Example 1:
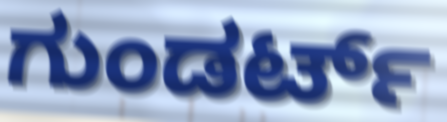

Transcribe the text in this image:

ಗುಂಡರ್ಟ್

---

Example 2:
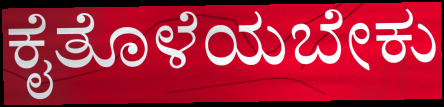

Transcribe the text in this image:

ಕೈತೊಳೆಯಬೇಕು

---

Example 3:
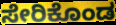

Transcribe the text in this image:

ಸೇರಿಕೊಂಡ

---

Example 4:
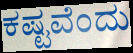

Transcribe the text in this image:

ಕಷ್ಟವೆಂದು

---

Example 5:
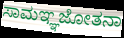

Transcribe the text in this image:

ಸಾಮಞ್ಞಜೋತನಾ